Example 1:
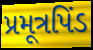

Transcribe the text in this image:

પ્રમૂત્રપિંડ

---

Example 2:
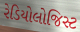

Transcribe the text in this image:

રેડિયોલોજિસ્ટ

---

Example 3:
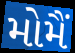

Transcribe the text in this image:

મોમૈં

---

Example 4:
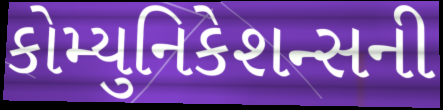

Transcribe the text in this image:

કોમ્યુનિકેશન્સની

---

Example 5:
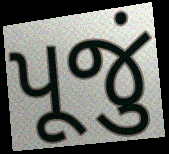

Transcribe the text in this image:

પૂજું